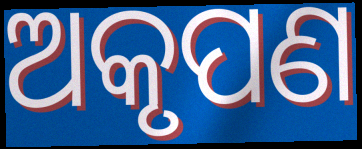
ଅକୃପଣ